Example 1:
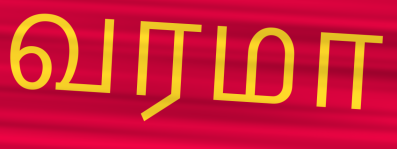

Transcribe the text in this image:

வரமா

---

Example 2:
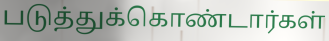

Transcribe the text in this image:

படுத்துக்கொண்டார்கள்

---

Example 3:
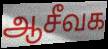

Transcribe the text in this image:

ஆசீவக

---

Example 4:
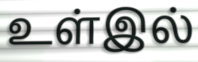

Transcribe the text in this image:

உள்இல்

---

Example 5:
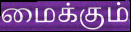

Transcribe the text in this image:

மைக்கும்